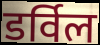
डर्विल